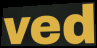
ved